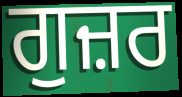
ਗੁਜ਼ਰ